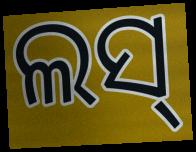
ଲସ୍